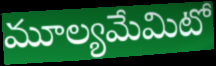
మూల్యమేమిటో